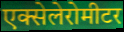
एक्सेलेरोमीटर